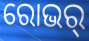
ରୋଭର୍